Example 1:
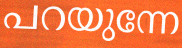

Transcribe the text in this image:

പറയുന്നേ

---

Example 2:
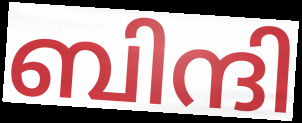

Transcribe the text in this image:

ബിന്ദി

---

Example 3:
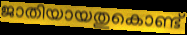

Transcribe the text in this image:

ജാതിയായതുകൊണ്ട്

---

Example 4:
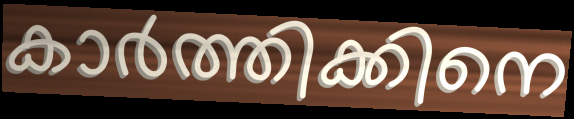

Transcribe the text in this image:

കാർത്തിക്കിനെ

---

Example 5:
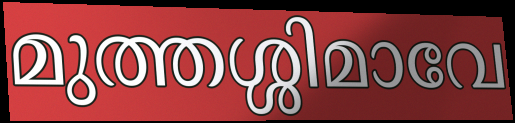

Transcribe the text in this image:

മുത്തശ്ശിമാവേ